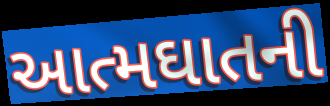
આત્મઘાતની